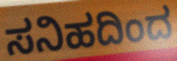
ಸನಿಹದಿಂದ